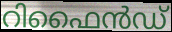
റിഫൈൻഡ്